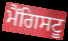
ਮੈਂਗਿਸਟੂ